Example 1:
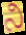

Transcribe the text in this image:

ನಿ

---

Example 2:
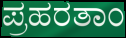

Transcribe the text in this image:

ಪ್ರಹರತಾಂ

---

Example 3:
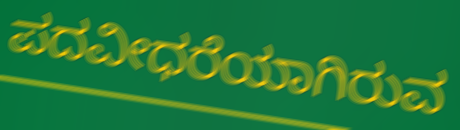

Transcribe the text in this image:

ಪದವೀಧರೆಯಾಗಿರುವ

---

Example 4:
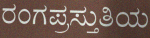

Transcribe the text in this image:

ರಂಗಪ್ರಸ್ತುತಿಯ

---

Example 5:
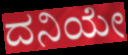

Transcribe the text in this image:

ದನಿಯೇ